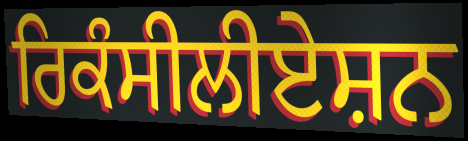
ਰਿਕੰਸੀਲੀਏਸ਼ਨ